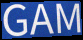
GAM